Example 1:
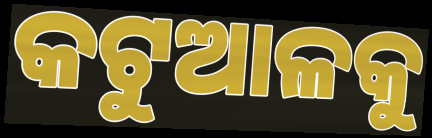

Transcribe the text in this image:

କଟୁଆଳକୁ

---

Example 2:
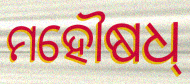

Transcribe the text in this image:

ମହୌଷଧ୍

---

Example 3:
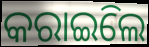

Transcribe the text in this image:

କରାଇିଲେ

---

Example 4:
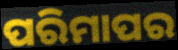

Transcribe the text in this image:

ପରିମାପର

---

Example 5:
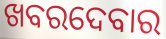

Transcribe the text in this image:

ଖବରଦେବାର